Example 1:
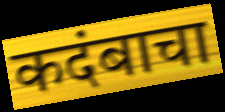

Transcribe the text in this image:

कदंबाचा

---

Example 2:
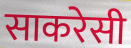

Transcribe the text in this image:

साकरेसी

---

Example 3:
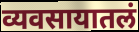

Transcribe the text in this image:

व्यवसायातलं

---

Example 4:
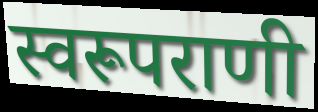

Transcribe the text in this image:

स्वरूपराणी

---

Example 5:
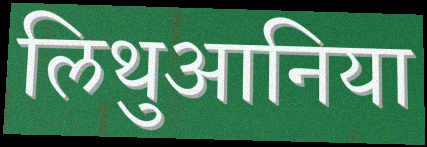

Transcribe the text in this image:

लिथुआनिया